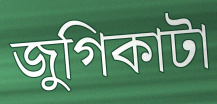
জুগিকাটা